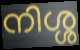
നിശ്ശ